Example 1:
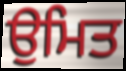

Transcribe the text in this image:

ਉਮਿਤ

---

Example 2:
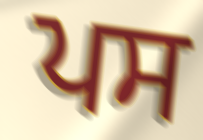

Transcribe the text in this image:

ਪਸ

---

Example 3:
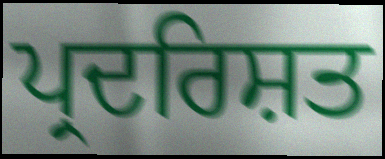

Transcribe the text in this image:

ਪ੍ਰਦਰਿਸ਼ਤ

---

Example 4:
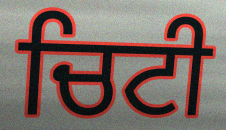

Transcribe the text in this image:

ਚਿਟੀ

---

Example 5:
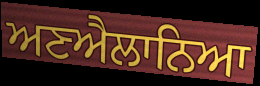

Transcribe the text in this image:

ਅਣਐਲਾਨਿਆ